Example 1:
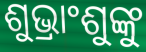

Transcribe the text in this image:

ଶୁଭ୍ରାଂଶୁଙ୍କୁ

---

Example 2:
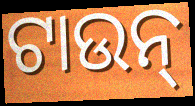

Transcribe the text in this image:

ଟାଉନ୍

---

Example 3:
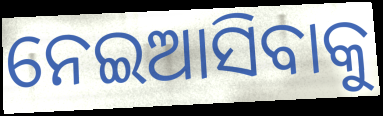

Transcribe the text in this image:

ନେଇଆସିବାକୁ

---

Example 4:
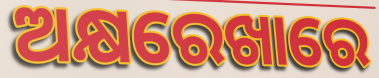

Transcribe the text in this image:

ଅକ୍ଷରେଖାରେ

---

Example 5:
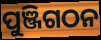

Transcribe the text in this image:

ପୁଞ୍ଜିଗଠନ